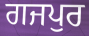
ਗਜਪੁਰ